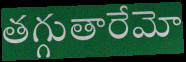
తగ్గుతారేమో